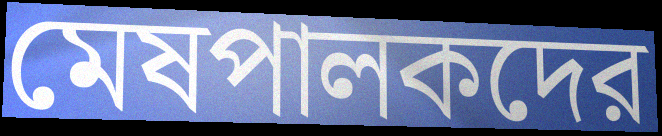
মেষপালকদের